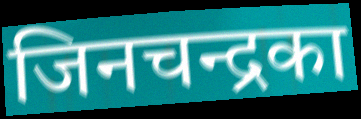
जिनचन्द्रका